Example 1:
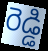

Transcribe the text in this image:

రెడ్డి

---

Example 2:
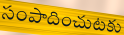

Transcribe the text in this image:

సంపాదించుటకు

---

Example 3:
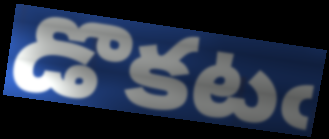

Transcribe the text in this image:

డొకటఁ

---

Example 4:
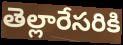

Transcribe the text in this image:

తెల్లారేసరికి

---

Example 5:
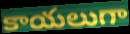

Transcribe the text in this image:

కాయలుగా